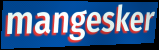
mangesker